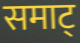
समाट्